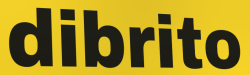
dibrito